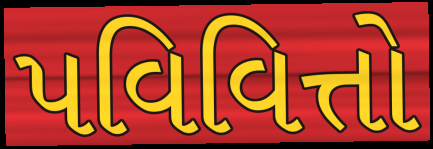
પવિવિત્તો